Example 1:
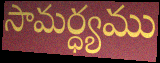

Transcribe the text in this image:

సామర్ధ్యము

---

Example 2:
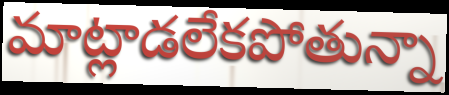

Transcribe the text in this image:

మాట్లాడలేకపోతున్నా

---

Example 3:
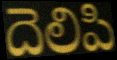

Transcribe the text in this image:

దెలిపి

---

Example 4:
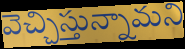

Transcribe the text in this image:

వెచ్చిస్తున్నామని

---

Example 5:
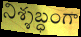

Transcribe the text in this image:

నిశ్శబ్ధంగా